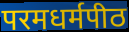
परमधर्मपीठ